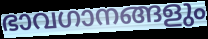
ഭാവഗാനങ്ങളും